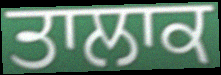
ਤਾਲਾਕ